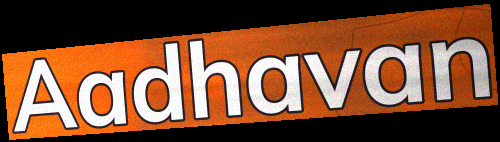
Aadhavan